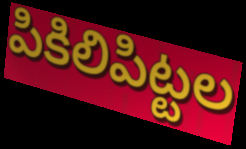
పికిలిపిట్టల